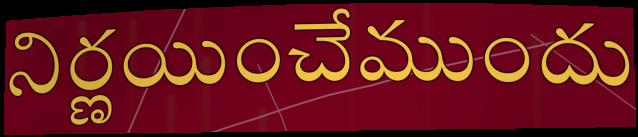
నిర్ణయించేముందు